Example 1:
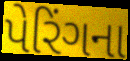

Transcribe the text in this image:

પેરિંગના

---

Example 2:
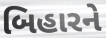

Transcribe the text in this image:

બિહારને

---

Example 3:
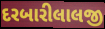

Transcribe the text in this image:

દરબારીલાલજી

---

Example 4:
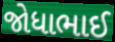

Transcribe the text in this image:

જોધાભાઈ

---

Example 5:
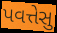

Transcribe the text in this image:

પવત્તેસુ